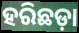
ହରିଛଡ଼ା